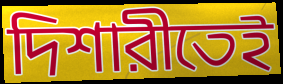
দিশারীতেই